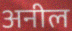
अनील